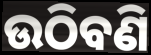
ଉଠିବଣି